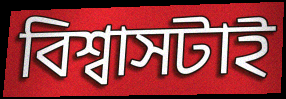
বিশ্বাসটাই